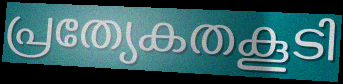
പ്രത്യേകതകൂടി